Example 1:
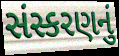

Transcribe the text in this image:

સંસ્કરણનું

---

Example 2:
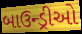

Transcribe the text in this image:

બાઉન્ડ્રીઓ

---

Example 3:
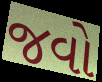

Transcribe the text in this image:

જવો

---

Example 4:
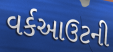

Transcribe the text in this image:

વર્કઆઉટની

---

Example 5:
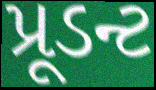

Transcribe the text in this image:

પ્રૂડન્ટ